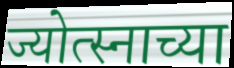
ज्योत्स्नाच्या